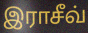
இராசீவ்